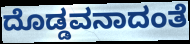
ದೊಡ್ಡವನಾದಂತೆ